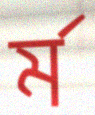
র্ম